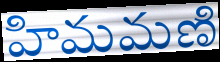
హిమమణి